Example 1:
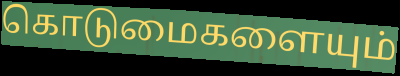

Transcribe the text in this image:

கொடுமைகளையும்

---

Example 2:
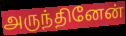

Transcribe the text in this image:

அருந்தினேன்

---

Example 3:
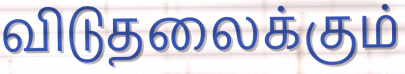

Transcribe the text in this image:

விடுதலைக்கும்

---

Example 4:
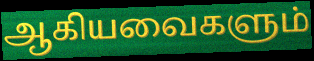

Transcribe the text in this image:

ஆகியவைகளும்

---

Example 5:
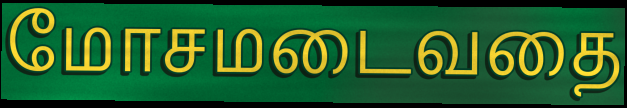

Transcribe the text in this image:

மோசமடைவதை